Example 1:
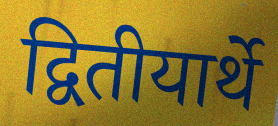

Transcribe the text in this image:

द्वितीयार्थे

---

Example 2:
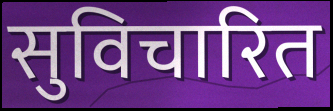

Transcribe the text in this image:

सुविचारित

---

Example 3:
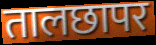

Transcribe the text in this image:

तालछापर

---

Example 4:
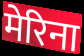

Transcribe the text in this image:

मेरिना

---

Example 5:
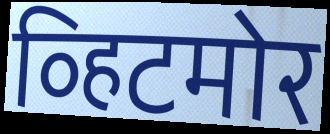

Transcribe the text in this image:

व्हिटमोर